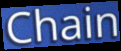
Chain